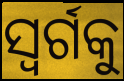
ସ୍ୱର୍ଗକୁ